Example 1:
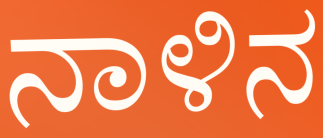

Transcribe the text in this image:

ನಾಳಿನ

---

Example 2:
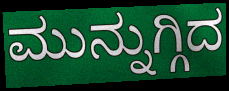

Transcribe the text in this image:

ಮುನ್ನುಗ್ಗಿದ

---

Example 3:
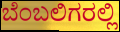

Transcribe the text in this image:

ಬೆಂಬಲಿಗರಲ್ಲಿ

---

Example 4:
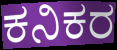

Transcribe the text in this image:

ಕನಿಕರ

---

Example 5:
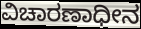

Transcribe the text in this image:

ವಿಚಾರಣಾಧೀನ